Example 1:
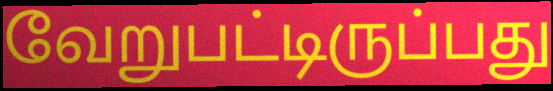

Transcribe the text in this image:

வேறுபட்டிருப்பது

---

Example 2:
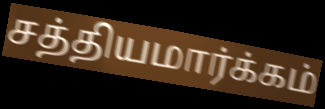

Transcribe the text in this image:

சத்தியமார்க்கம்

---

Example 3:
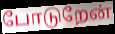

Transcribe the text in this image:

போடுறேன்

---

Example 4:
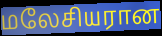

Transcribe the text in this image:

மலேசியரான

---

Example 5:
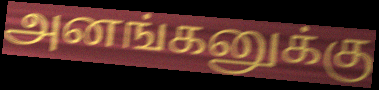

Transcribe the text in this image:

அனங்கனுக்கு